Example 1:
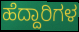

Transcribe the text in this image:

ಹೆದ್ದಾರಿಗಳ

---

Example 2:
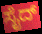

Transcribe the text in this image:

ಸೈದ್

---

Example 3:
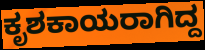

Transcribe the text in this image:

ಕೃಶಕಾಯರಾಗಿದ್ದ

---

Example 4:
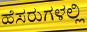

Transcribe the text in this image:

ಹೆಸರುಗಳಲ್ಲಿ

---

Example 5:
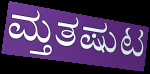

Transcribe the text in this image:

ಮ್ತತಷುಟ